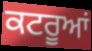
ਕਟਰੂਆਂ